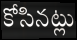
కోసినట్లు